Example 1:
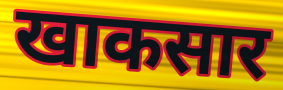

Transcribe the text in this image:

खाकसार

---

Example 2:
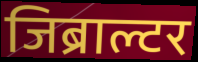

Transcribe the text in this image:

जिब्राल्टर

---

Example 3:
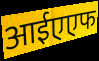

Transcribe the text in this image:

आईएएफ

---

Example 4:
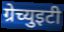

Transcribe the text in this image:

ग्रेच्युइटी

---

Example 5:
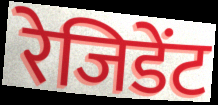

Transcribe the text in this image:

रेजिडेंट